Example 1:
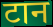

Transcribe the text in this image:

टान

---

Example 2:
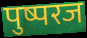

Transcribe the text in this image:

पुष्परज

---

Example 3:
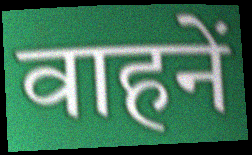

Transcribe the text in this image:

वाहनें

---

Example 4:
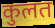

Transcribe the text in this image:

कुलत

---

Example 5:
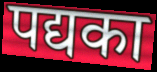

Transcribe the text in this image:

पद्यका